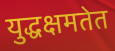
युद्धक्षमतेत